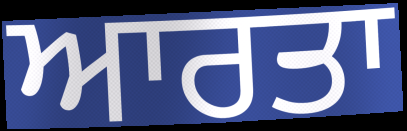
ਆਰਤਾ